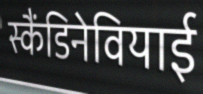
स्कैंडिनेवियाई